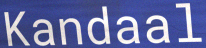
Kandaal